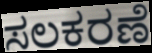
ಸಲಕರಣೆ